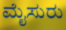
ಮೈಸುರು